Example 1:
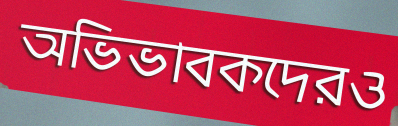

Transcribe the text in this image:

অভিভাবকদেরও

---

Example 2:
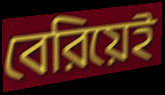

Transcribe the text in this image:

বেরিয়েই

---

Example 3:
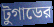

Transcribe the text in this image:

টুগাডের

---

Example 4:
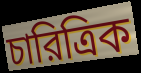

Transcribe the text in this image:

চারিত্রিক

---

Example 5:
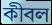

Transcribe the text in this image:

কীবল